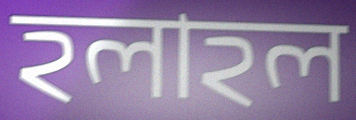
হলাহল